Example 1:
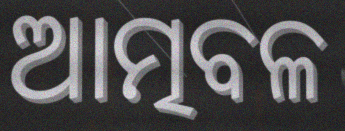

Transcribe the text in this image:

ଆତ୍ମବଳ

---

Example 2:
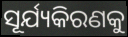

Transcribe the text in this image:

ସୂର୍ଯ୍ୟକିରଣକୁ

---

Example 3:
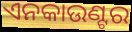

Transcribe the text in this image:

ଏନକାଉଣ୍ଟର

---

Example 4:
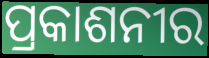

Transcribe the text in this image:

ପ୍ରକାଶନୀର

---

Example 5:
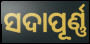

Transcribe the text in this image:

ସଦାପୂର୍ଣ୍ଣ